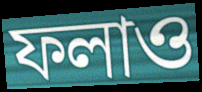
ফলাও